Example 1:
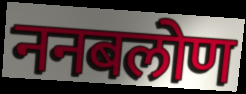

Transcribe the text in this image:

ननबलोण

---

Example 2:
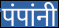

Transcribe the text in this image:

पंपांनी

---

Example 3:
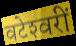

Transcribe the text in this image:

वटेश्वरीं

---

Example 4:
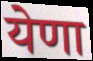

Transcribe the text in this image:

येणा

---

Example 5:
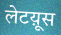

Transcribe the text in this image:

लेटय़ूस